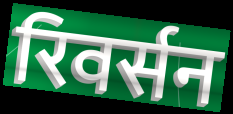
रिवर्सन